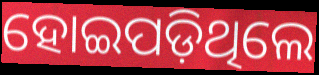
ହୋଇପଡ଼ିଥିଲେ